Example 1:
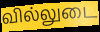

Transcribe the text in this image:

வில்லுடை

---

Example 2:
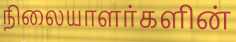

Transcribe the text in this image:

நிலையாளர்களின்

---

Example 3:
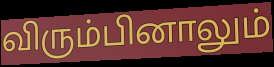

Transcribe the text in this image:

விரும்பினாலும்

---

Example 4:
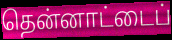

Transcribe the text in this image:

தென்னாட்டைப்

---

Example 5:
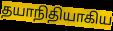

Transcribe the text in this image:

தயாநிதியாகிய